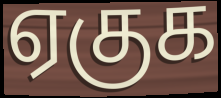
ஏகுக